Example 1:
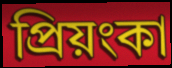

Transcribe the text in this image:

প্ৰিয়ংকা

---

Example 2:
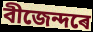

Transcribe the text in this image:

বীজেন্দৰে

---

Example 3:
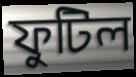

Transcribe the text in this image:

ফুটিল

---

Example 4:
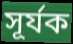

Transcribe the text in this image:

সূৰ্যক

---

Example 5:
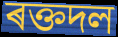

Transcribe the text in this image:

ৰক্তদল